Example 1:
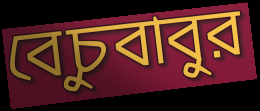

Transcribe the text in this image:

বেচুবাবুর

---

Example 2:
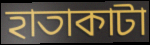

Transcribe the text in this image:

হাতাকাটা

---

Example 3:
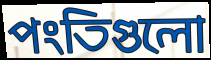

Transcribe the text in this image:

পংতিগুলো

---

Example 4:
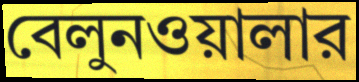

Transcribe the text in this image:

বেলুনওয়ালার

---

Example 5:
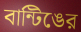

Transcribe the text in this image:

বান্টিঙের